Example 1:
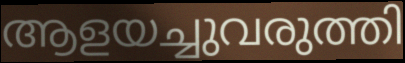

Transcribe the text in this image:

ആളയച്ചുവരുത്തി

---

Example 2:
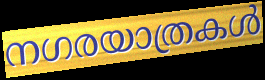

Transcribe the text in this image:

നഗരയാത്രകൾ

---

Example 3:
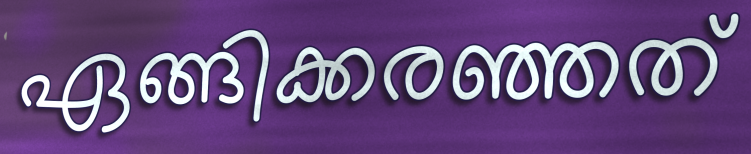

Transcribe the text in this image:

ഏങ്ങിക്കരഞ്ഞത്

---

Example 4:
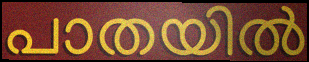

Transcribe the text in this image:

പാതയിൽ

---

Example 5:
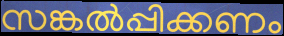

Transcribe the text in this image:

സങ്കൽപ്പിക്കണം